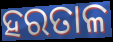
ହରତାଳ